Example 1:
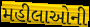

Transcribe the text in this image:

મહીલાઓની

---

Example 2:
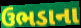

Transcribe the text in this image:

ઉભડાના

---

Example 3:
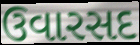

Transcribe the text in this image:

ઉવારસદ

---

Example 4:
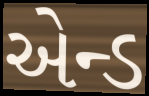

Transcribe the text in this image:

એન્ડ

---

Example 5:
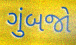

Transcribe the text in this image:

ગુંબજો